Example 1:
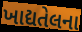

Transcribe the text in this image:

ખાદ્યતેલના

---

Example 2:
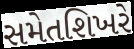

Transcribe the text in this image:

સમેતશિખરે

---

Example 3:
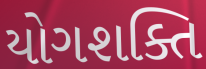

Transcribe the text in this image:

યોગશક્તિ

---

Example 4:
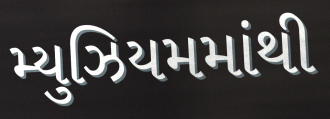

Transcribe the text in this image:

મ્યુઝિયમમાંથી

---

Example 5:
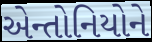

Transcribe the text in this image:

એન્તોનિયોને